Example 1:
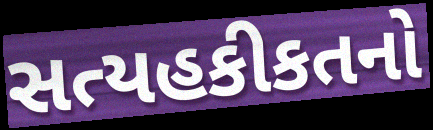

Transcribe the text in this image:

સત્યહકીકતનો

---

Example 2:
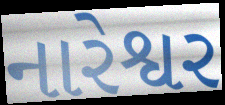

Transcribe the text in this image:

નારેશ્વર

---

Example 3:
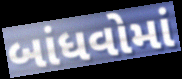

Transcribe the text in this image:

બાંધવોમાં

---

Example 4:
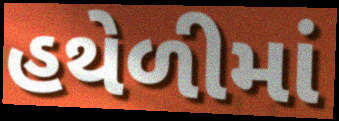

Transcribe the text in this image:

હથેળીમાં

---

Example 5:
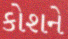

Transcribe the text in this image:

કોશને